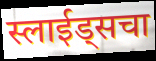
स्लाईड्सचा